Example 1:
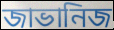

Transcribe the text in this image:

জাভানিজ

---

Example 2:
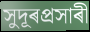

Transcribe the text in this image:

সুদূৰপ্ৰসাৰী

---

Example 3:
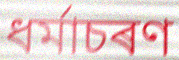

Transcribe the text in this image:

ধৰ্মাচৰণ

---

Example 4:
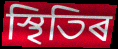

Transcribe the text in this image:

স্থিতিৰ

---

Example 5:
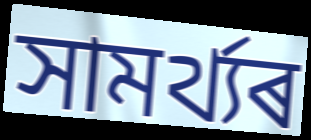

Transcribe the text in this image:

সামৰ্থ্যৰ